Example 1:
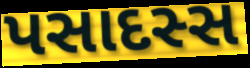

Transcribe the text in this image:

પસાદસ્સ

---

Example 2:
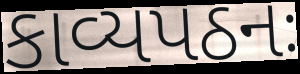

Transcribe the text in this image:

કાવ્યપઠનઃ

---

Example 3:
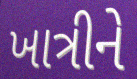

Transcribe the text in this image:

ખાત્રીને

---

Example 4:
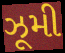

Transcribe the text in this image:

ઝૂમી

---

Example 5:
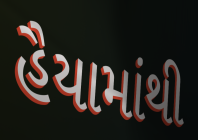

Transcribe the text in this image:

હૈયામાંથી